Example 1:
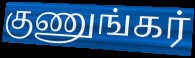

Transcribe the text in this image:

குணுங்கர்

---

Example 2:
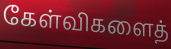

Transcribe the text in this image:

கேள்விகளைத்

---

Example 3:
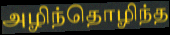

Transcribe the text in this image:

அழிந்தொழிந்த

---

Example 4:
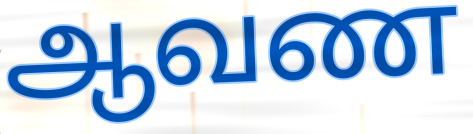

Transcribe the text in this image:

ஆவண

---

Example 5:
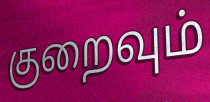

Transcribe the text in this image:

குறைவும்